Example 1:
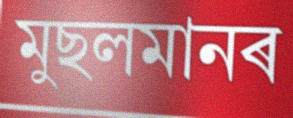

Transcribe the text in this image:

মুছলমানৰ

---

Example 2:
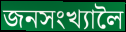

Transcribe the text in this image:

জনসংখ্যালৈ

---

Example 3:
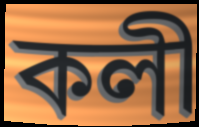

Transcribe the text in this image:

কলী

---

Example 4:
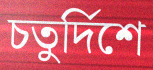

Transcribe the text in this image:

চতুৰ্দিশে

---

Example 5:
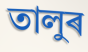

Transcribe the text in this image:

তালুৰ